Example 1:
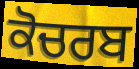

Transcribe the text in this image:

ਕੋਚਰਬ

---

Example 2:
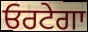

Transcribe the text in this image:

ਓਰਟੇਗਾ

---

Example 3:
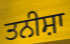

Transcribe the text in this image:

ਤਨੀਸ਼ਾ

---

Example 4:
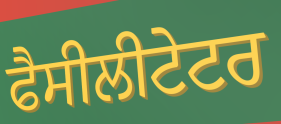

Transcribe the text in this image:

ਫੈਸੀਲੀਟੇਟਰ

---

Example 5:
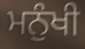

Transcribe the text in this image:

ਮਨੁੰਖੀ